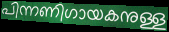
പിന്നണിഗായകനുള്ള